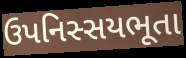
ઉપનિસ્સયભૂતા